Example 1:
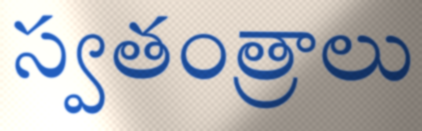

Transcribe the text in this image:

స్వతంత్రాలు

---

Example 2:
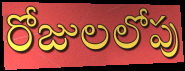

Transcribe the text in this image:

రోజులలోపు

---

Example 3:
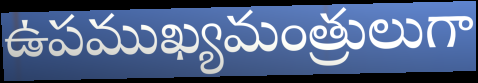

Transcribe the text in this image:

ఉపముఖ్యమంత్రులుగా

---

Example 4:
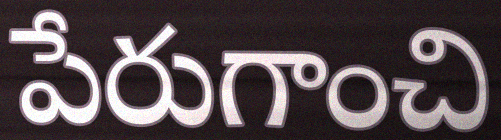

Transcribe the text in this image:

పేరుగాంచి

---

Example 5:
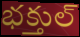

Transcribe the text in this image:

భక్తుల్